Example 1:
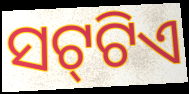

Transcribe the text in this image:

ସଟ୍‍ଟିଏ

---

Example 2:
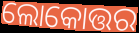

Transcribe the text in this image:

ଲୋକୋତ୍ତର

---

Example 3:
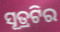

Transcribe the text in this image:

ସୂତ୍ରଟିର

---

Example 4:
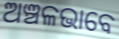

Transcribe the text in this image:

ଅଞ୍ଚଳଭାବେ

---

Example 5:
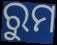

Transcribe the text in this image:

ରୁମ